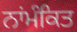
ਨਾਂਮੰਕਿਤ